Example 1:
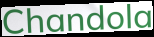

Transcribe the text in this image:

Chandola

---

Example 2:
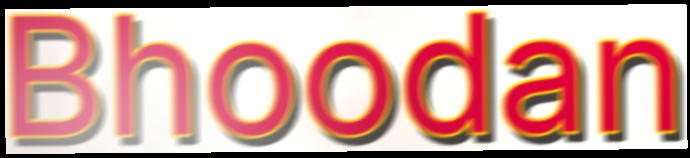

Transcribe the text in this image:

Bhoodan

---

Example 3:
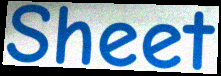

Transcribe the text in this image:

Sheet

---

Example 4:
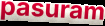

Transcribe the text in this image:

pasuram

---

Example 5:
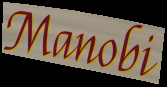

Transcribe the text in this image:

Manobi